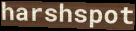
harshspot